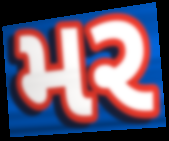
મર